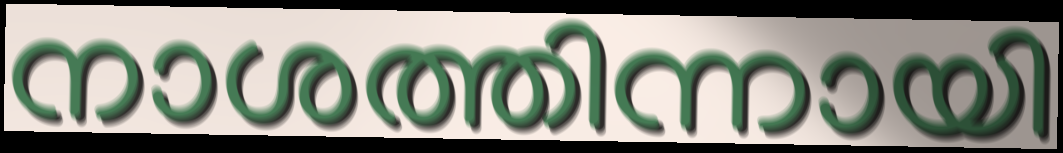
നാശത്തിന്നായി